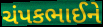
ચંપકભાઈને